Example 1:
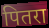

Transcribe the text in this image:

पितरा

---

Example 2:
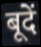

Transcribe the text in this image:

बूदें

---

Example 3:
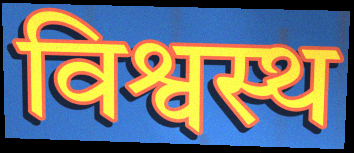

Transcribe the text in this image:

विश्वस्थ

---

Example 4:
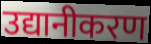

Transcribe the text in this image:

उद्यानीकरण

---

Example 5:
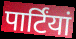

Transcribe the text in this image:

पार्टिंयां